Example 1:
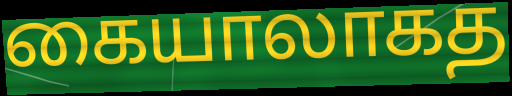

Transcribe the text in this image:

கையாலாகத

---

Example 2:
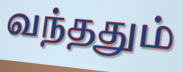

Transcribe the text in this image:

வந்ததும்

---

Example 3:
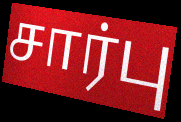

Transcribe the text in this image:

சார்பு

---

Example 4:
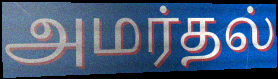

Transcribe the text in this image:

அமர்தல்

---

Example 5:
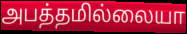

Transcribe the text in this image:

அபத்தமில்லையா